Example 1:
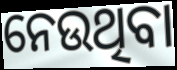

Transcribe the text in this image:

ନେଉଥିବା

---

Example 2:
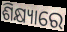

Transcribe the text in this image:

ଶିକ୍ଷ୍ୟାରେ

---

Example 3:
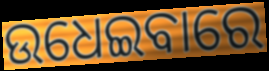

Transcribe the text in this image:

ଉଧେଇବାରେ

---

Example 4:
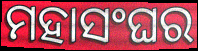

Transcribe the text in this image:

ମହାସଂଘର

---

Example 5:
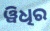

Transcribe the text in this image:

ୱିଧିର